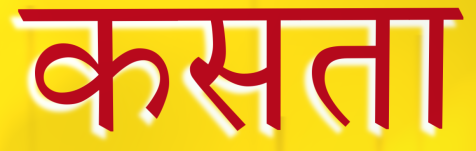
कसता